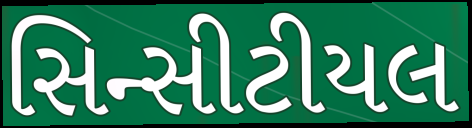
સિન્સીટીયલ